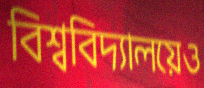
বিশ্ববিদ্যালয়েও